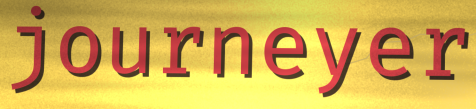
journeyer